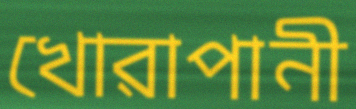
খোৱাপানী